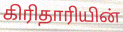
கிரிதாரியின்